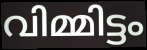
വിമ്മിട്ടം